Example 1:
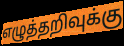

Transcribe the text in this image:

எழுத்தறிவுக்கு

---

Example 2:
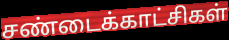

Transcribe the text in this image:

சண்டைக்காட்சிகள்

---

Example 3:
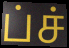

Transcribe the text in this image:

ப்ச்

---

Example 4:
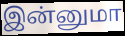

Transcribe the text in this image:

இன்னுமா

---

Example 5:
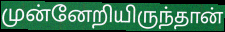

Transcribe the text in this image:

முன்னேறியிருந்தான்